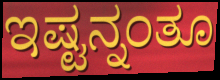
ಇಷ್ಟನ್ನಂತೂ